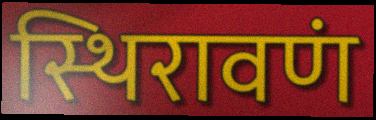
स्थिरावणं